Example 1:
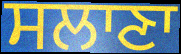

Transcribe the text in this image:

ਸਲਾਣਾ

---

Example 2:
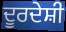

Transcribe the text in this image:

ਦੂਰਦੇਸ਼ੀ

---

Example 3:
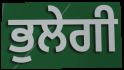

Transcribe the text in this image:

ਭੁਲੇਗੀ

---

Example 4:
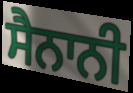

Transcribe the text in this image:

ਸੈਨਾਨੀ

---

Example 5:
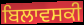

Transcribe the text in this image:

ਬਿਲਾਵਸਕੀ